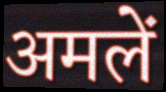
अमलें